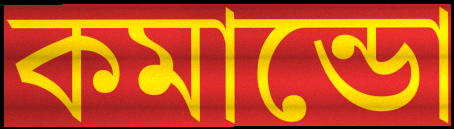
কমান্ডো